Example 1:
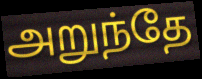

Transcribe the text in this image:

அறுந்தே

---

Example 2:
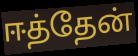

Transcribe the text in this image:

ஈத்தேன்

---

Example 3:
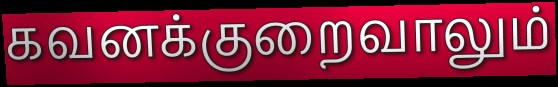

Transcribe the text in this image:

கவனக்குறைவாலும்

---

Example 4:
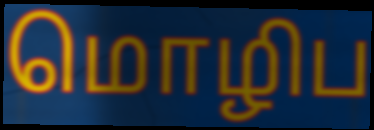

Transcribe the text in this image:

மொழிப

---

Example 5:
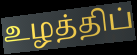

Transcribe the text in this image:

உழத்திப்